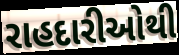
રાહદારીઓથી